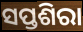
ସପ୍ତଶିରା